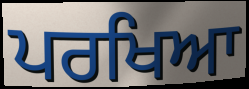
ਪਰਖਿਆ